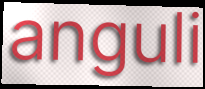
anguli